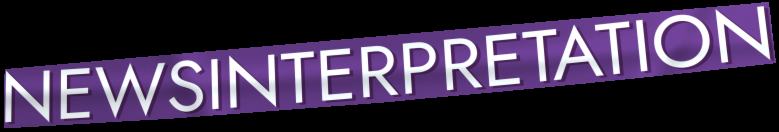
NEWSINTERPRETATION